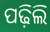
ପଢ଼ିଲି